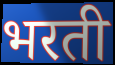
भरती